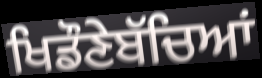
ਖਿਡੌਣੇਬੱਚਿਆਂ